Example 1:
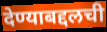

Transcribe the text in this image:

देण्याबद्दलची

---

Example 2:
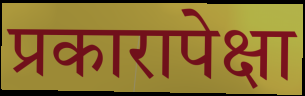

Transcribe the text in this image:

प्रकारापेक्षा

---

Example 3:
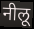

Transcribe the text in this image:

नीलू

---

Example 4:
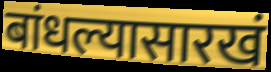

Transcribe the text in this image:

बांधल्यासारखं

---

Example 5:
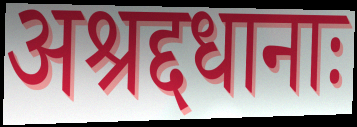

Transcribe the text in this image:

अश्रद्दधानाः